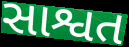
સાશ્વત